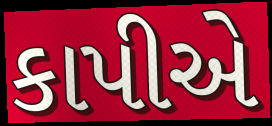
કાપીએ